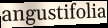
angustifolia